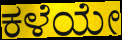
ಕಳೆಯೇ